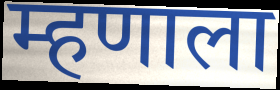
म्‍हणाला